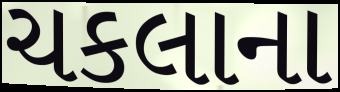
ચકલાના